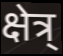
क्षेत्र्